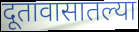
दूतावासातल्या